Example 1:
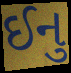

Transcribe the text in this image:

ઈનુ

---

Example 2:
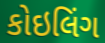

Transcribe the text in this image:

કોઇલિંગ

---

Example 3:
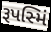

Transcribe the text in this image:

રૂપસ્મિં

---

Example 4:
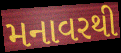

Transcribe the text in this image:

મનાવરથી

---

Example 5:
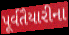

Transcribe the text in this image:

પૂર્વતૈયારીના